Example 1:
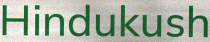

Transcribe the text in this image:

Hindukush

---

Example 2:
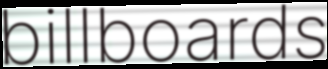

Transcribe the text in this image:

billboards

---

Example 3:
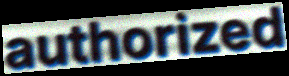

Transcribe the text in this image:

authorized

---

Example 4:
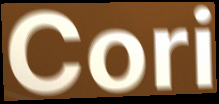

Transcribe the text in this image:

Cori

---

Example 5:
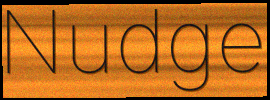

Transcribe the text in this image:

Nudge